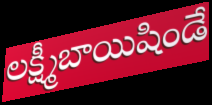
లక్ష్మీబాయిషిండే